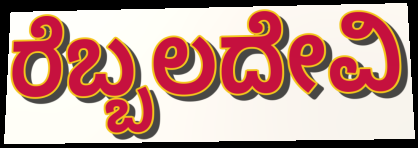
ರೆಬ್ಬಲದೇವಿ